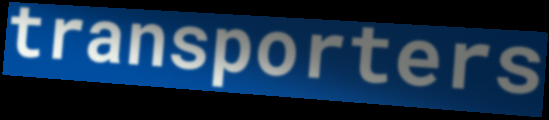
transporters